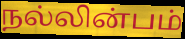
நல்லின்பம்